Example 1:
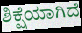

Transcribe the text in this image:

ಶಿಕ್ಷೆಯಾಗಿದೆ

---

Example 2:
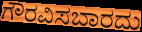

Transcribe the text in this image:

ಗೌರವಿಸಬಾರದು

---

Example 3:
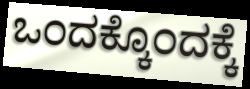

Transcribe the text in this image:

ಒಂದಕ್ಕೊಂದಕ್ಕೆ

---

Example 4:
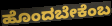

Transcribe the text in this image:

ಹೊಂದಬೇಕೆಂಬ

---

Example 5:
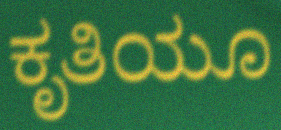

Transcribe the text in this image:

ಕೃತಿಯೂ